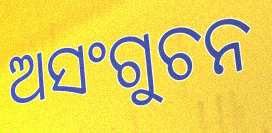
ଅସଂଗୁଚନ